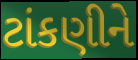
ટાંકણીને